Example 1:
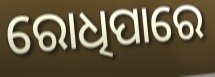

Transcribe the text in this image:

ରୋଧିପାରେ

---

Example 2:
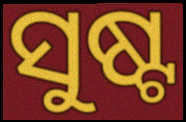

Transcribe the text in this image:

ସୁଷ୍ଟ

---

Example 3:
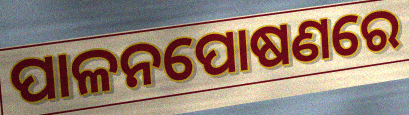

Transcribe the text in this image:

ପାଳନପୋଷଣରେ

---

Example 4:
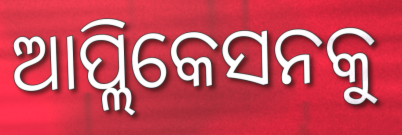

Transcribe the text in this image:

ଆପ୍ଲିକେସନକୁ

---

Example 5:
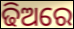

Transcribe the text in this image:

ଢିଅରେ